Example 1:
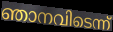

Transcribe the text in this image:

ഞാനവിടെന്ന്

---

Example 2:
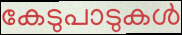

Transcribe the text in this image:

കേടുപാടുകൾ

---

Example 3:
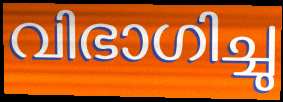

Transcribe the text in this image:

വിഭാഗിച്ചു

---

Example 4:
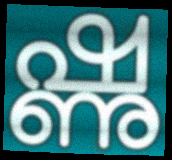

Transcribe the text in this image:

ഷ്ണു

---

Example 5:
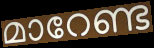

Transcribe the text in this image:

മാറേണ്ട